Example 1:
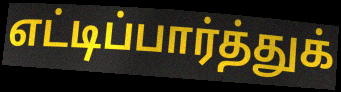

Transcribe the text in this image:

எட்டிப்பார்த்துக்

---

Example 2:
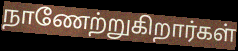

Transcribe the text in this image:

நாணேற்றுகிறார்கள்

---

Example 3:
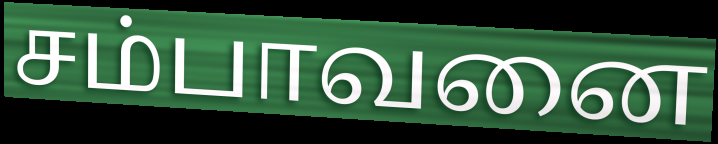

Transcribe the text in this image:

சம்பாவனை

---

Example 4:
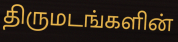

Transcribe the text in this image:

திருமடங்களின்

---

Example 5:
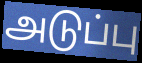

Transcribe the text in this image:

அடுப்பு